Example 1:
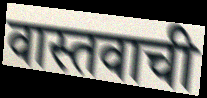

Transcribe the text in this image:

वास्तवाची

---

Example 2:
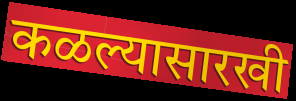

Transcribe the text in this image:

कळल्यासारखी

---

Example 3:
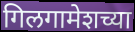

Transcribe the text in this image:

गिलगामेशच्या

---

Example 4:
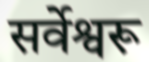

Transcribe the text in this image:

सर्वेश्वरू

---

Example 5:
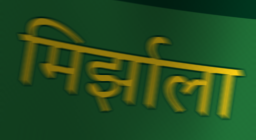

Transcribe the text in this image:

मिर्झाला